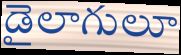
డైలాగులూ